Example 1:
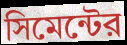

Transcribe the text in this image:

সিমেন্টের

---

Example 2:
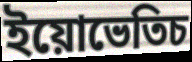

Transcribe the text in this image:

ইয়োভেতিচ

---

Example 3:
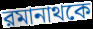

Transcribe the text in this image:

রমানাথকে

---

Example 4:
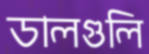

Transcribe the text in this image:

ডালগুলি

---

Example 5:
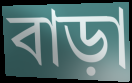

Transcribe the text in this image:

বাড়া